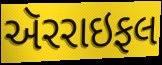
ઍરરાઇફલ